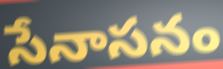
సేనాసనం